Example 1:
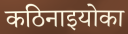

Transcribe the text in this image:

कठिनाइयोका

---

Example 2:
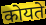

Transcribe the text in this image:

कोयते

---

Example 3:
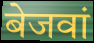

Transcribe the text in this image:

बेजवां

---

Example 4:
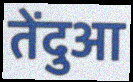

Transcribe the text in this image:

तेंदुआ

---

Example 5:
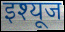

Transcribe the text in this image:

इश्यूज